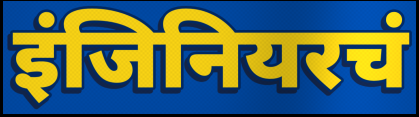
इंजिनियरचं